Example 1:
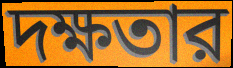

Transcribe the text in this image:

দক্ষতার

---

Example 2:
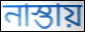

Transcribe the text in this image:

নাস্তায়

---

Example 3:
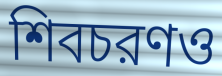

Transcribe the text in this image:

শিবচরণও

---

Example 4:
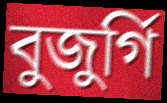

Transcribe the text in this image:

বুজুর্গি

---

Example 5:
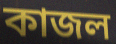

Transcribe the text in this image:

কাজল